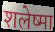
शलेष्मा